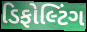
ડિફોલ્ટિંગ